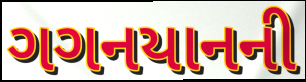
ગગનયાનની